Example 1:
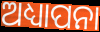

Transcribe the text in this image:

ଅଧ୍ୟାପନା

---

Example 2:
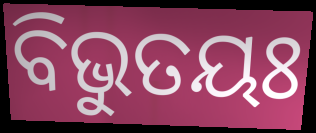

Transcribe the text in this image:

ବିଭୁତୟଃ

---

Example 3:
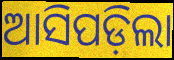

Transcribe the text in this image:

ଆସିପଡ଼ିଲା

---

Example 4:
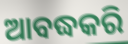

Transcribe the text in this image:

ଆବଦ୍ଧକରି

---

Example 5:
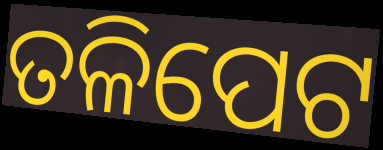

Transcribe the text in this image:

ତଳିପେଟ